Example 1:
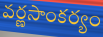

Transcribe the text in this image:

వర్ణసాంకర్యం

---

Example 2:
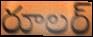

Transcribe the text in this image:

రూలర్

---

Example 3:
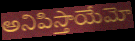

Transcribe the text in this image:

అనిపిస్తాయేమో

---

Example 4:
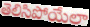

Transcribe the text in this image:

తెలిసిపోయేలా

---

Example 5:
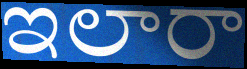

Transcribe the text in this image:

ఇలారా